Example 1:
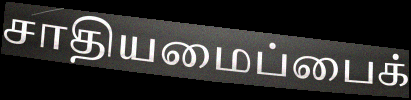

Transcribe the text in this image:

சாதியமைப்பைக்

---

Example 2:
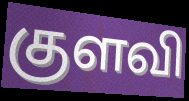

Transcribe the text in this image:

குளவி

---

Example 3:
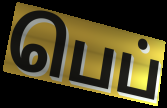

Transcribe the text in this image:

பெப்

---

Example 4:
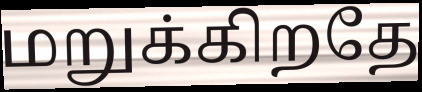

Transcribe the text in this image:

மறுக்கிறதே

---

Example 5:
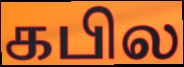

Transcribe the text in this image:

கபில